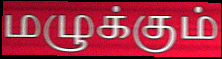
மழுக்கும்